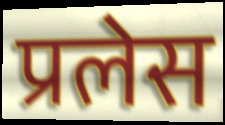
प्रलेस